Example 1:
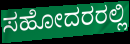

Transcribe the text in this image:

ಸಹೋದರರಲ್ಲಿ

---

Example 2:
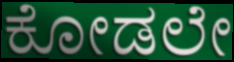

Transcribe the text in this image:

ಕೋಡಲೇ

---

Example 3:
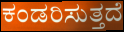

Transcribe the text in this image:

ಕಂಡರಿಸುತ್ತದೆ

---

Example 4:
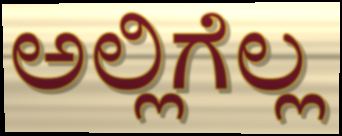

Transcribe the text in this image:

ಅಲ್ಲಿಗೆಲ್ಲ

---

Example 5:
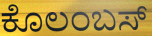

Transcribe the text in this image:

ಕೊಲಂಬಸ್